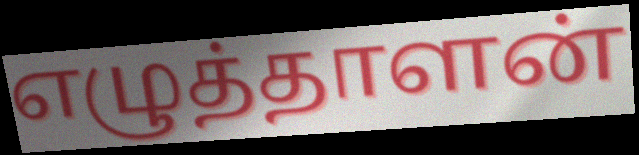
எழுத்தாளன்